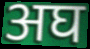
अघ